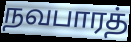
நவபாரத்